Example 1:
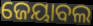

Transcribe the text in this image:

ଜେୟାବଲ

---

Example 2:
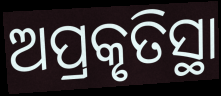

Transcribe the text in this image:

ଅପ୍ରକୃତିସ୍ଥା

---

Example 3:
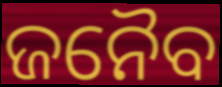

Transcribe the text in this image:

ଜନୈବ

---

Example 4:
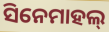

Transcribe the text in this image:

ସିନେମାହଲ୍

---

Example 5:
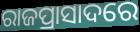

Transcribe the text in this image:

ରାଜପ୍ରାସାଦରେ